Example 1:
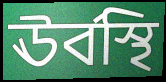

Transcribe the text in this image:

ঊর্বস্থি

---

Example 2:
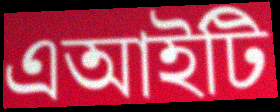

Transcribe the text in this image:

এআইটি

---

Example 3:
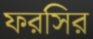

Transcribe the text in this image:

ফরসির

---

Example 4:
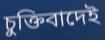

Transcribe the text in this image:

চুক্তিবাদেই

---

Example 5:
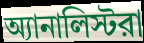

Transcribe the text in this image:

অ্যানালিস্টরা